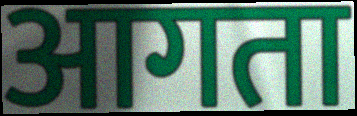
आगता